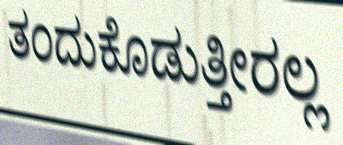
ತಂದುಕೊಡುತ್ತೀರಲ್ಲ